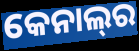
କେନାଲ୍‍ର